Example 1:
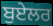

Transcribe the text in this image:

ਬੁਏਲਰ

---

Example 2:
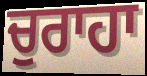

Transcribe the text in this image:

ਚੁਰਾਹਾ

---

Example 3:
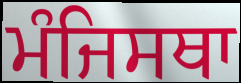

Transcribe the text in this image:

ਮੰਜਿਸਥਾ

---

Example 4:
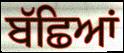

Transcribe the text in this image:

ਬੱਛਿਆਂ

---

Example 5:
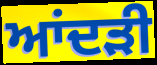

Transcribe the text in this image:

ਆਂਦੜੀ